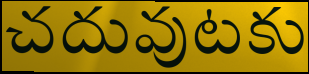
చదువుటకు